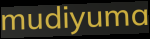
mudiyuma